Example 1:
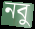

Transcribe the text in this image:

নবু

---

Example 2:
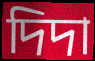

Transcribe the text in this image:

দিদা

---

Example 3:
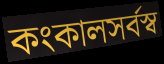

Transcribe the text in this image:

কংকালসর্বস্ব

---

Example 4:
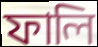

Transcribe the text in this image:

ফালি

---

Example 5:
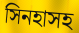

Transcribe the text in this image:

সিনহাসহ